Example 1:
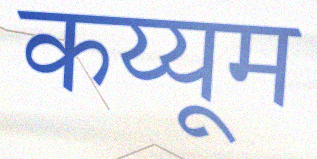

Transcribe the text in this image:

कय्यूम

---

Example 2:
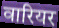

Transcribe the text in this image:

वारियर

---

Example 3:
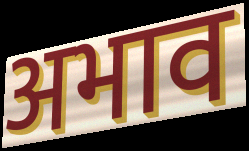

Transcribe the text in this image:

अभाव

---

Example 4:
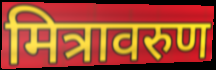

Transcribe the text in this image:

मित्रावरुण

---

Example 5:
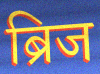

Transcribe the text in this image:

ब्रिज